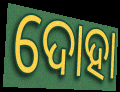
ଦୋହା